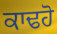
ਕਾਢਹੋ